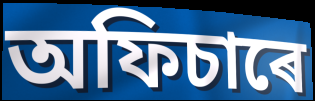
অফিচাৰে